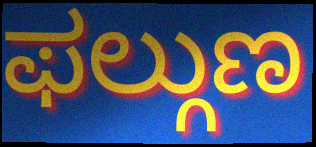
ಫಲ್ಗುಣ